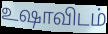
உஷாவிடம்